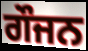
ਗੌਜਨ